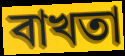
বাখতা